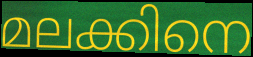
മലക്കിനെ